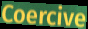
Coercive